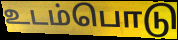
உடம்பொடு